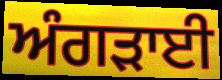
ਅੰਗੜਾਈ